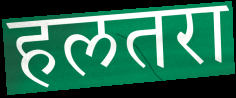
हलतरा